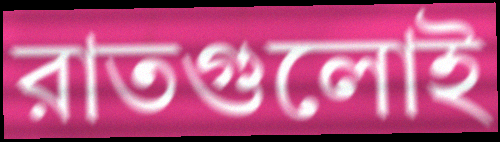
রাতগুলোই